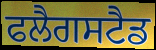
ਫਲੈਗਸਟੈਡ